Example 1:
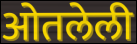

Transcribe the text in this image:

ओतलेली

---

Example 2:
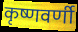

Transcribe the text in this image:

कृष्णवर्णी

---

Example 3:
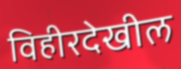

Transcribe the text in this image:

विहीरदेखील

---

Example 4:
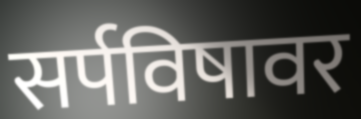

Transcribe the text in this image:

सर्पविषावर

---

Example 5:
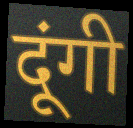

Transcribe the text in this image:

दूंगी